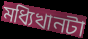
মধ্যিখানটা